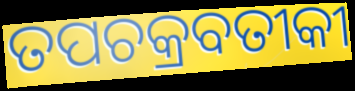
ତପଚକ୍ରବତୀକୀ